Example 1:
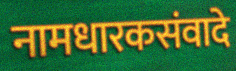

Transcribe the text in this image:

नामधारकसंवादे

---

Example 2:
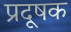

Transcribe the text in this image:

प्रदूषक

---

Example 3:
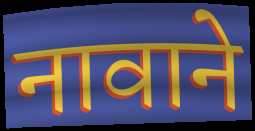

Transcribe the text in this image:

नावाने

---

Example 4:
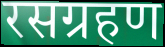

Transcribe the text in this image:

रसग्रहण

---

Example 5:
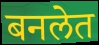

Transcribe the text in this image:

बनलेत